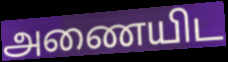
அணையிட